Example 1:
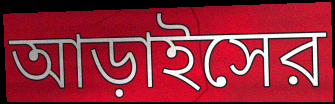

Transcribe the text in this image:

আড়াইসের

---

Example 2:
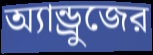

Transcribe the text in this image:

অ্যান্ড্রুজের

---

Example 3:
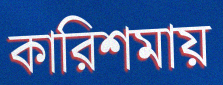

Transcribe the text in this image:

কারিশমায়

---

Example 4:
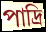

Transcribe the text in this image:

পাদ্রি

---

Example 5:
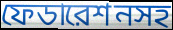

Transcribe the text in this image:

ফেডারেশনসহ